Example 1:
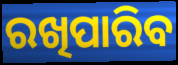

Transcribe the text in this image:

ରଖିପାରିବ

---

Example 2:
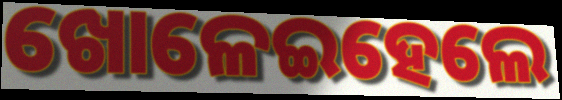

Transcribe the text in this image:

ଖୋଳେଇହେଲେ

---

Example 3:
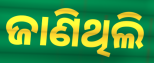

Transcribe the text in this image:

ଜାଣିଥିଲି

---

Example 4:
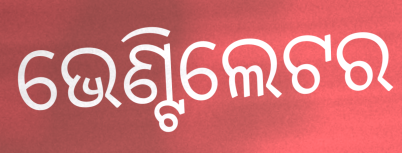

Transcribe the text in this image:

ଭେଣ୍ଟିଲେଟର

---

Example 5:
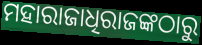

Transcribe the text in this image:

ମହାରାଜାଧିରାଜଙ୍କଠାରୁ